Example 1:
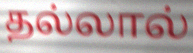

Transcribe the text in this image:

தல்லால்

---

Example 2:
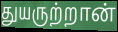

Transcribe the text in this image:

துயருற்றான்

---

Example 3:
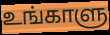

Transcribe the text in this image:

உங்காளு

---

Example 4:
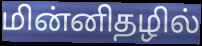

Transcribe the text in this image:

மின்னிதழில்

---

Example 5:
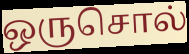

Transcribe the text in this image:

ஒருசொல்